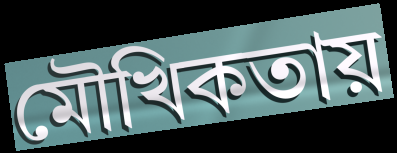
মৌখিকতায়